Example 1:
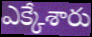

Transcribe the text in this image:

ఎక్కేశారు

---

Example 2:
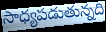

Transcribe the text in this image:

సాధ్యపడుతున్నది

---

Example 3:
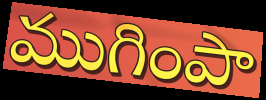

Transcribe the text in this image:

ముగింపా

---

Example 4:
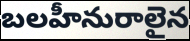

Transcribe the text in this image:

బలహీనురాలైన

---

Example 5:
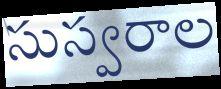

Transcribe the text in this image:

సుస్వరాల